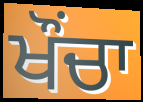
ਖੌੰਚਾ